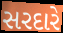
સરદારે